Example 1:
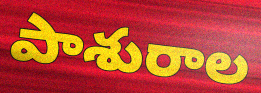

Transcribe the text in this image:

పాశురాల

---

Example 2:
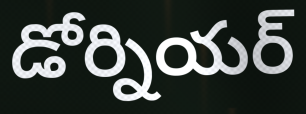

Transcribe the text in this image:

డోర్నియర్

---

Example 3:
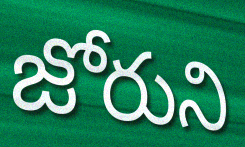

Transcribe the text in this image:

జోరుని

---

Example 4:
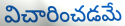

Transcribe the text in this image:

విచారించడమే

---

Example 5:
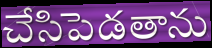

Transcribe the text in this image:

చేసిపెడతాను